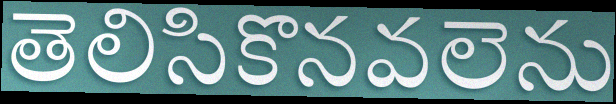
తెలిసికొనవలెను